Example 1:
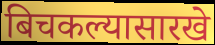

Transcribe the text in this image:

बिचकल्यासारखे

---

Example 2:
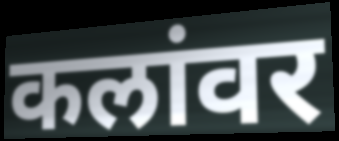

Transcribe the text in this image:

कलांवर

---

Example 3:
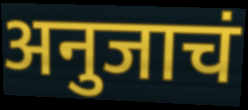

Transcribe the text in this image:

अनुजाचं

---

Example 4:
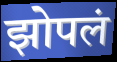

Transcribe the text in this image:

झोपलं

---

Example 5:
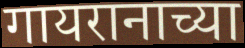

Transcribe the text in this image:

गायरानाच्या